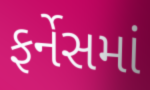
ફર્નેસમાં